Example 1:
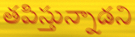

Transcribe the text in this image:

తపిస్తున్నాడని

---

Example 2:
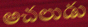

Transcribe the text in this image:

అచలుడు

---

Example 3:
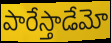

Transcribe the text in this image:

పారేస్తాడేమో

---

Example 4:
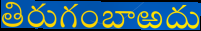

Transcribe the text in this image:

తిరుగంబాఱదు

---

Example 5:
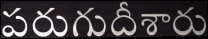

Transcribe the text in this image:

పరుగుదీశారు